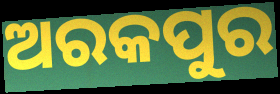
ଅରକପୁର